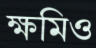
ক্ষমিও